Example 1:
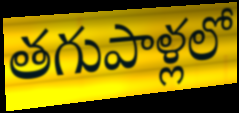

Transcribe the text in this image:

తగుపాళ్లలో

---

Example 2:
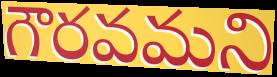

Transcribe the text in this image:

గౌరవమని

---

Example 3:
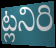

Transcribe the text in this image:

ట్లనిరి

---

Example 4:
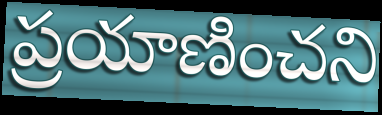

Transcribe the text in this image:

ప్రయాణించని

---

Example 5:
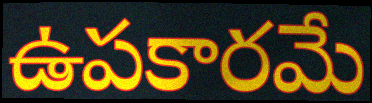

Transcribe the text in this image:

ఉపకారమే